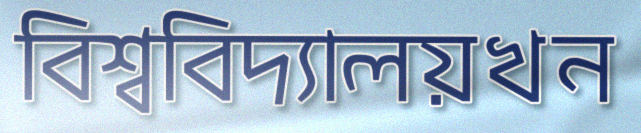
বিশ্ববিদ্যালয়খন